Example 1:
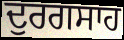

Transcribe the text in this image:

ਦੁਰਗਸਾਹ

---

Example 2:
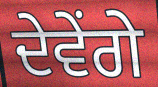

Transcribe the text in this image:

ਦੇਵੇਂਗੇ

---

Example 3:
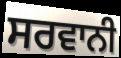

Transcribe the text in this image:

ਸਰਵਾਨੀ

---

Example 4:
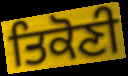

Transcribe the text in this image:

ਤਿਕੋਣੀ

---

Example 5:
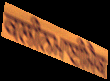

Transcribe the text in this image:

ਕਲੀਨਮਾਈਮੈਕ